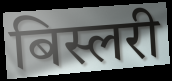
बिस्लरी